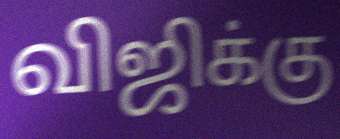
விஜிக்கு